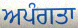
ਅਪੰਗਤਾ